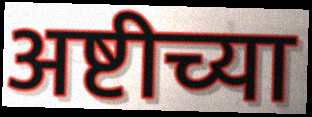
अष्टीच्या